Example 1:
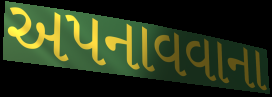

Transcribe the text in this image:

અપનાવવાના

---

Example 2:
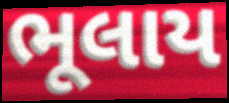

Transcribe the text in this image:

ભૂલાય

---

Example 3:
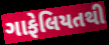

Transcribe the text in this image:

ગાફેલિયતથી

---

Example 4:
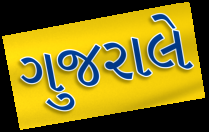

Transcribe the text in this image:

ગુજરાલે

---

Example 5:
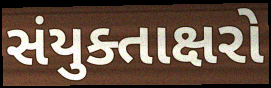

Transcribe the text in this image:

સંયુક્તાક્ષરો